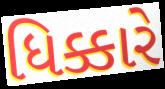
ધિક્કારે